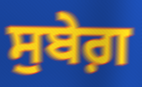
ਸੁਬੇਗ਼